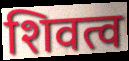
शिवत्व